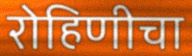
रोहिणीचा